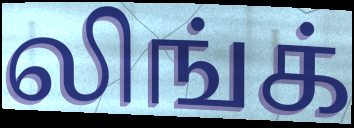
லிங்க்